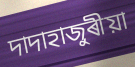
দাদাহাজুৰীয়া